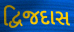
દ્વિજદાસ